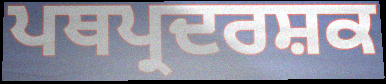
ਪਥਪ੍ਰਦਰਸ਼ਕ